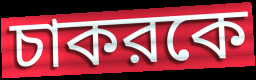
চাকরকে